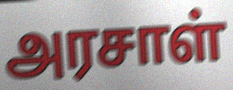
அரசாள்